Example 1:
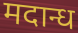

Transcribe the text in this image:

मदान्ध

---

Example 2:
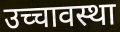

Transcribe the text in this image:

उच्चावस्था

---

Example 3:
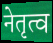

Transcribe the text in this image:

नेतृत्व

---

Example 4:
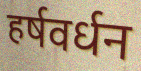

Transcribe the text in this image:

हर्षवर्धन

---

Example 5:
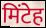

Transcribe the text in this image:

मिंटेह